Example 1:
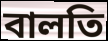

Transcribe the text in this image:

বালতি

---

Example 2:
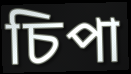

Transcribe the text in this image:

চিপা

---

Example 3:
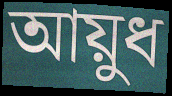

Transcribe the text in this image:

আয়ুধ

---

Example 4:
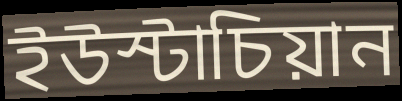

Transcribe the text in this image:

ইউস্টাচিয়ান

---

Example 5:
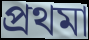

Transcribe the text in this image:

প্রথমা